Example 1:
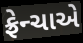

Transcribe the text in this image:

ફ્રેન્ચાએ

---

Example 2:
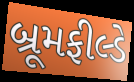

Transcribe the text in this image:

બ્રૂમફીલ્ડે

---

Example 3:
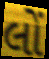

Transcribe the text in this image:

લોં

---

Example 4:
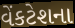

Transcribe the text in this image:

વેંકટેશના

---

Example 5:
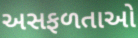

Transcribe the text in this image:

અસફળતાઓ